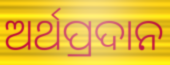
ଅର୍ଥପ୍ରଦାନ